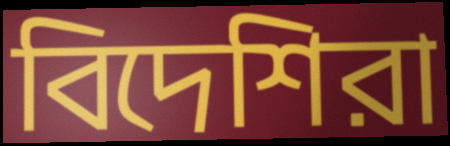
বিদেশিরা